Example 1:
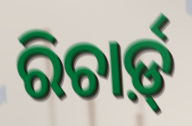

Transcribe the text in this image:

ରିଚାର୍ଡ଼୍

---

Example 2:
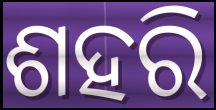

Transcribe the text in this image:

ଶହରି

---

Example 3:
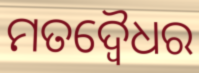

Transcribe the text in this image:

ମତଦ୍ୱୈଧର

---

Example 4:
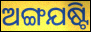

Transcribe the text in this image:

ଅଙ୍ଗଯଷ୍ଟି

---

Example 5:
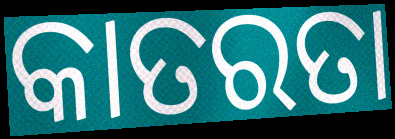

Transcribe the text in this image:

କାତରତା